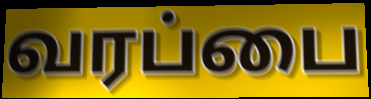
வரப்பை